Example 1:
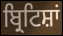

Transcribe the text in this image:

ਬ੍ਰਿਟਿਸ਼ਾਂ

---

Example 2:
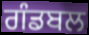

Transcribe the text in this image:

ਗੰਡਬਲ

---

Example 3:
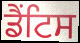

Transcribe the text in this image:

ਡੈਂਟਿਸ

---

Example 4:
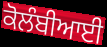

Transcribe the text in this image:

ਕੋਲੰਬੀਆਈ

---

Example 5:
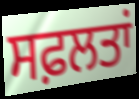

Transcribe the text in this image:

ਸਫ਼ਲਤਾਂ